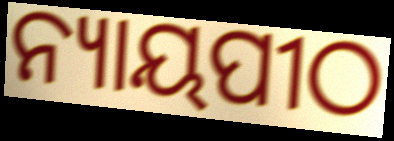
ନ୍ୟାୟପୀଠ